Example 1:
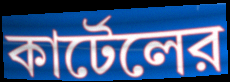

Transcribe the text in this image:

কার্টেলের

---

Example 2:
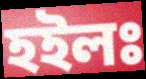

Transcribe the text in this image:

হইলঃ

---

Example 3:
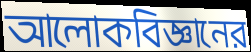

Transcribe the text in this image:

আলোকবিজ্ঞানের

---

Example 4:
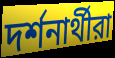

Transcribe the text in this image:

দর্শনার্থীরা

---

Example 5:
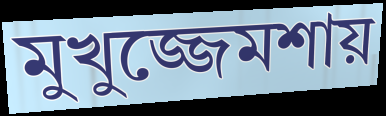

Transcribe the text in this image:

মুখুজ্জেমশায়